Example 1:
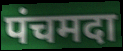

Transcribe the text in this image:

पंचमदा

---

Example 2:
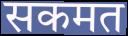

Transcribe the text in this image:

सकमत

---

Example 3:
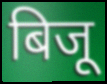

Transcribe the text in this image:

बिजू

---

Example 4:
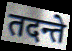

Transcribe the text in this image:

तदन्ते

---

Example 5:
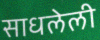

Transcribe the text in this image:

साधलेली